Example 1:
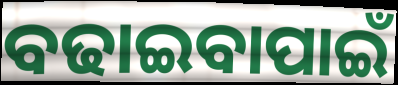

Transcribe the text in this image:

ବଢାଇବାପାଇଁ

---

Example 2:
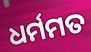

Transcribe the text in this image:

ଧର୍ମମତ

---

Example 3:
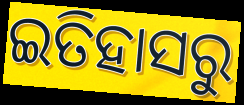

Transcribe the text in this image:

ଇତିହାସରୁ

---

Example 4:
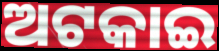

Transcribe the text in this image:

ଅଟକାଇ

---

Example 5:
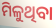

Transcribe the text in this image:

ମିଳୁଥିବା